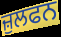
ਜ਼ੁਲਫਨ